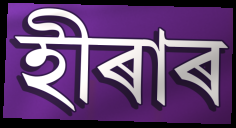
হীৰাৰ